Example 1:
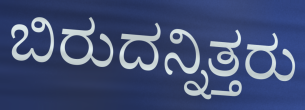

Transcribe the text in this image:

ಬಿರುದನ್ನಿತ್ತರು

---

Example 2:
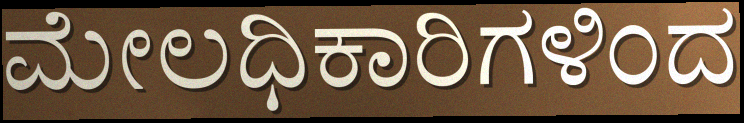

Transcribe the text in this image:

ಮೇಲಧಿಕಾರಿಗಳಿಂದ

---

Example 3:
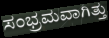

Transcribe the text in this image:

ಸಂಭ್ರಮವಾಗಿತ್ತು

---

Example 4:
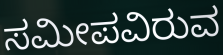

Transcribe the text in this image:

ಸಮೀಪವಿರುವ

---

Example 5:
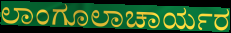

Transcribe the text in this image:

ಲಾಂಗೂಲಾಚಾರ್ಯರ